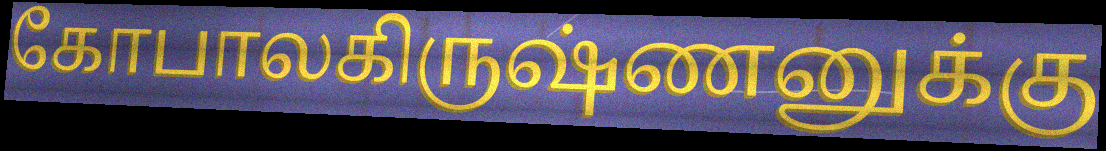
கோபாலகிருஷ்ணனுக்கு